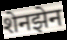
शेनझेन